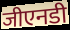
जीएनडी